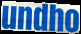
undho